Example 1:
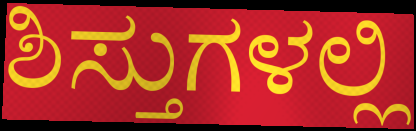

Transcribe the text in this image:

ಶಿಸ್ತುಗಳಲ್ಲಿ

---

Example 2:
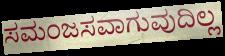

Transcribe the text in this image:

ಸಮಂಜಸವಾಗುವುದಿಲ್ಲ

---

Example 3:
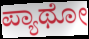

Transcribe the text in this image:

ಪ್ಯಾಥೋ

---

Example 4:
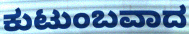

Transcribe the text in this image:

ಕುಟುಂಬವಾದ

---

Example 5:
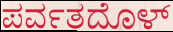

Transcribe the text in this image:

ಪರ್ವತದೊಳ್